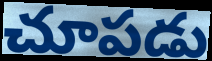
చూపడు